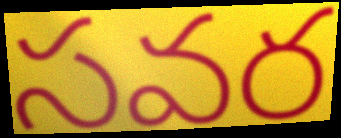
సవర